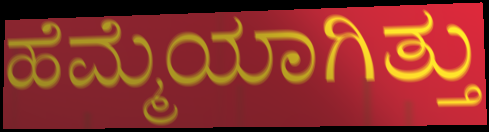
ಹೆಮ್ಮೆಯಾಗಿತ್ತು